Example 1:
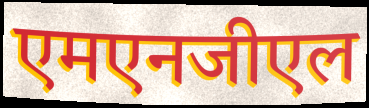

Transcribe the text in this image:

एमएनजीएल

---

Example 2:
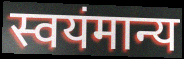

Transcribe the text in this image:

स्वयंमान्य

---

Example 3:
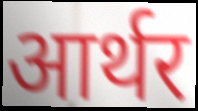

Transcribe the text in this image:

आर्थर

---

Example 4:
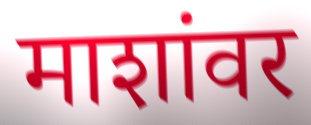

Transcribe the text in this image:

माशांवर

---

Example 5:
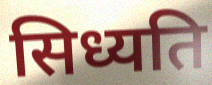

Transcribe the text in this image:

सिध्यति